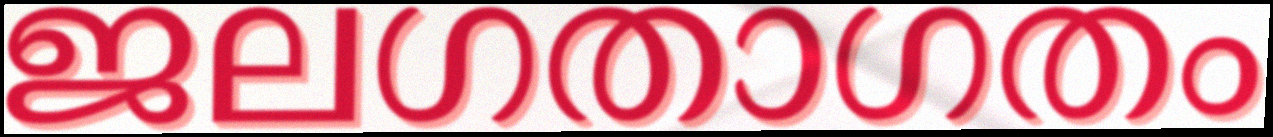
ജലഗതാഗതം